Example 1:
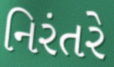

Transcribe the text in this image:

નિરંતરે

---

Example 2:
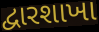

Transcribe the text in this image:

દ્વારશાખા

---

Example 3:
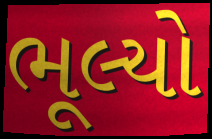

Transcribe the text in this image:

ભૂલ્‍યો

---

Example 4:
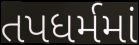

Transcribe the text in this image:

તપધર્મમાં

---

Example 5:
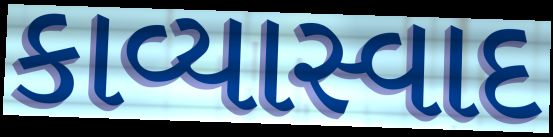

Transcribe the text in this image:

કાવ્યાસ્વાદ